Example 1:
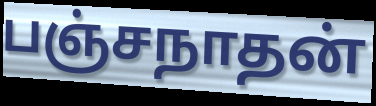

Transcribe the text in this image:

பஞ்சநாதன்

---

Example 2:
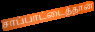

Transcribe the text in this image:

சாப்பாட்டைத்தான்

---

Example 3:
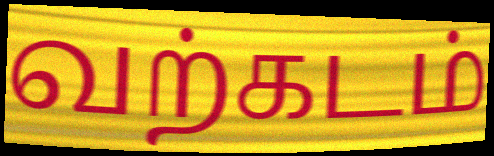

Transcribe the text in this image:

வற்கடம்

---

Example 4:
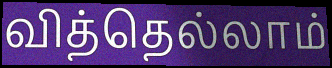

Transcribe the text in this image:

வித்தெல்லாம்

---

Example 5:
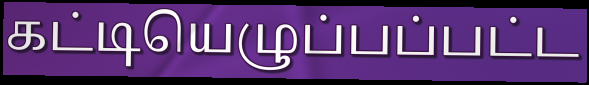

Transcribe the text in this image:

கட்டியெழுப்பப்பட்ட